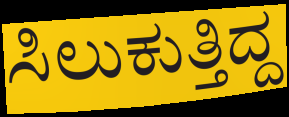
ಸಿಲುಕುತ್ತಿದ್ದ